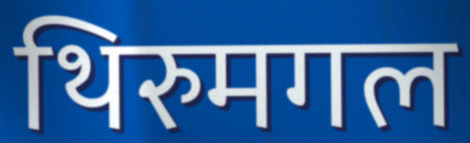
थिरुमगल